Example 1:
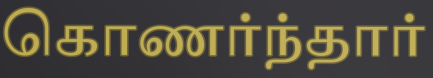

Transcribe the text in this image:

கொணர்ந்தார்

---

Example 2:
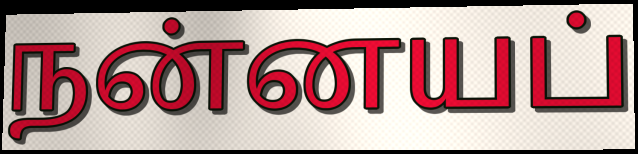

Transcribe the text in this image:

நன்னயப்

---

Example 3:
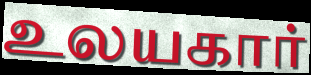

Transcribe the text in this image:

உலயகார்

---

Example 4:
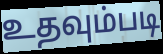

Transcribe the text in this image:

உதவும்படி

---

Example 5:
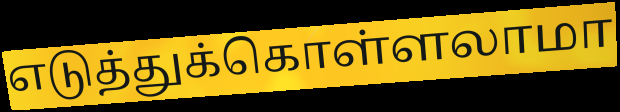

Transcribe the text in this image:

எடுத்துக்கொள்ளலாமா